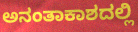
ಅನಂತಾಕಾಶದಲ್ಲಿ